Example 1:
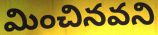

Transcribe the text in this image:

మించినవని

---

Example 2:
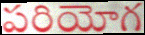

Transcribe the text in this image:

పరియోగ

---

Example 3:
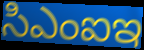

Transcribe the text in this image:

సిఎంఐఇ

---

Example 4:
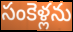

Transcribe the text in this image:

సంకెళ్లను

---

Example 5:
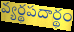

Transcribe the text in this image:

వ్యర్థపదార్థం